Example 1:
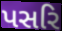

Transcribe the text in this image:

પસરિ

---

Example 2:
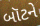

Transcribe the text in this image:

બૉટને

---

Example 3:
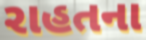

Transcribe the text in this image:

રાહતના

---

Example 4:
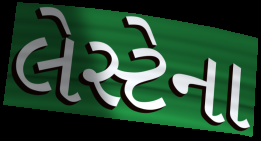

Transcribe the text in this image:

લેસ્ટેના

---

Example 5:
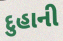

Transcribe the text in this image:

દુહાની